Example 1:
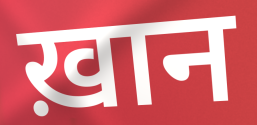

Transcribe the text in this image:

ख़ान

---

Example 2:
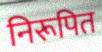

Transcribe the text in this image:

निरूपित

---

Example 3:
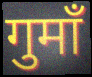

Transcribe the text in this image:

गुमाँ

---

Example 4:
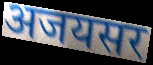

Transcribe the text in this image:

अजयसर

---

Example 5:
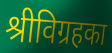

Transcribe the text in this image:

श्रीविग्रहका